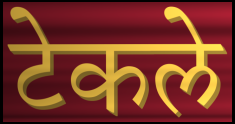
टेकले